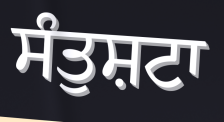
ਸੰਤੁਸ਼ਟਾ